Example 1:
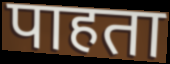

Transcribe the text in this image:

पाहता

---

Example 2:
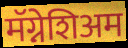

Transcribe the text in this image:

मॅग्नेशिअम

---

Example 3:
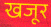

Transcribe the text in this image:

खजूर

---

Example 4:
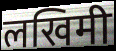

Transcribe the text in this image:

लखिमी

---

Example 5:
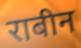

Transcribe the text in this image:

राबीन